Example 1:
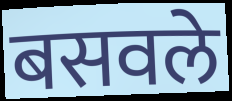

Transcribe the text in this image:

बसवले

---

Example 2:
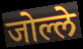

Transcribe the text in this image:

जोल्ले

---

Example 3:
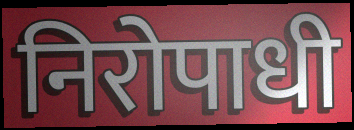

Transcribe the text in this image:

निरोपाधी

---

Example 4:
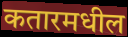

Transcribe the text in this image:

कतारमधील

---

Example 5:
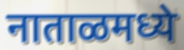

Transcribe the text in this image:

नाताळमध्ये